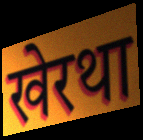
खेरथा